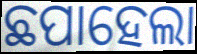
ଛପାହେଲା